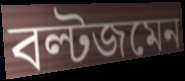
বল্টজমেন